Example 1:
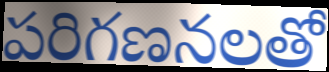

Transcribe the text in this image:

పరిగణనలతో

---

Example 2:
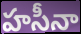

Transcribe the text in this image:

హసీనా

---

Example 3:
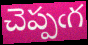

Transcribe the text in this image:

చెప్పఁగ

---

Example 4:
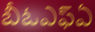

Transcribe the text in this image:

బీఓఎఫ్ఏ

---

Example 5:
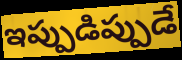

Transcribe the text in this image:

ఇప్పుడిప్పుడే